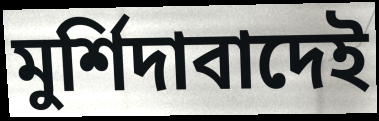
মুর্শিদাবাদেই